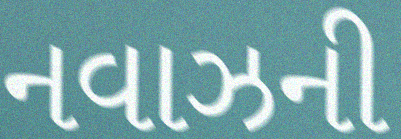
નવાઝની